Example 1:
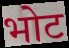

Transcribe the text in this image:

भोट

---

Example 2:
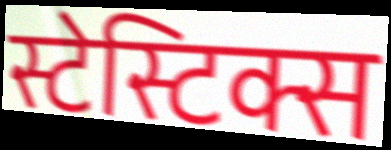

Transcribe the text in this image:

स्टेस्टिक्स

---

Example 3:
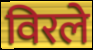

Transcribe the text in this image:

विरले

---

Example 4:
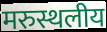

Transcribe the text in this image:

मरुस्थलीय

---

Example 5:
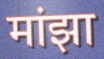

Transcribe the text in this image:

मांझा